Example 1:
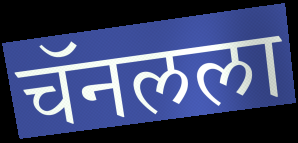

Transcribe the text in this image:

चॅनलला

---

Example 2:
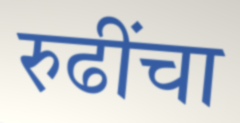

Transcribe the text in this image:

रुढींचा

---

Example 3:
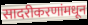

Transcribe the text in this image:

सादरीकरणांमधून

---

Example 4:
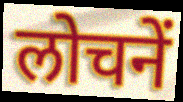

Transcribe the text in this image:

लोचनें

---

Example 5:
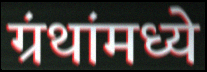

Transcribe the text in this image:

ग्रंथांमध्ये